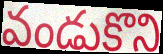
వండుకొని